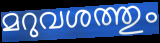
മറുവശത്തും